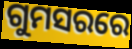
ଗୁମସରରେ